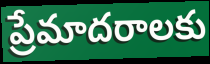
ప్రేమాదరాలకు